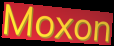
Moxon